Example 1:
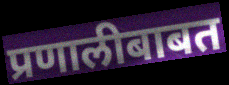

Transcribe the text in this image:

प्रणालीबाबत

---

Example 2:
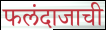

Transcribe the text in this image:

फलंदाजाची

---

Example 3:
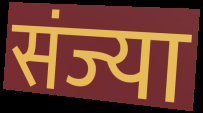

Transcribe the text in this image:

संज्या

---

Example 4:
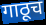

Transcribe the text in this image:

गाठूच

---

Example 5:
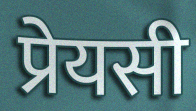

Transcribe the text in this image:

प्रेयसी